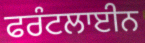
ਫਰੰਟਲਾਈਨ